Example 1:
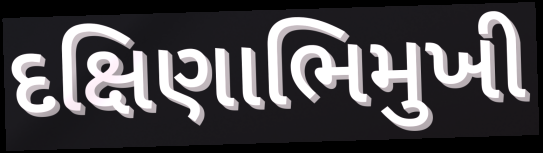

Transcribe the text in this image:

દક્ષિણાભિમુખી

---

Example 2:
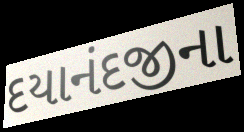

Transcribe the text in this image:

દયાનંદજીના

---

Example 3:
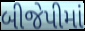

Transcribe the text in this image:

બીજેપીમાં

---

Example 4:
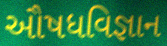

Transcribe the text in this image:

ઔષધવિજ્ઞાન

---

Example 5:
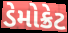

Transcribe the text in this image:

ડેમોક્રેટ